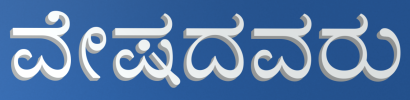
ವೇಷದವರು